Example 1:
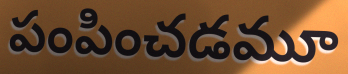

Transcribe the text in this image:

పంపించడమూ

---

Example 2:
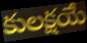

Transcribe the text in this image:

కులక్షయే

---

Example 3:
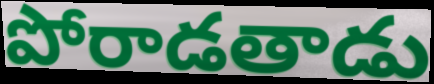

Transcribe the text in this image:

పోరాడతాడు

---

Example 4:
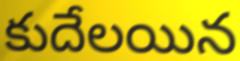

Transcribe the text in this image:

కుదేలయిన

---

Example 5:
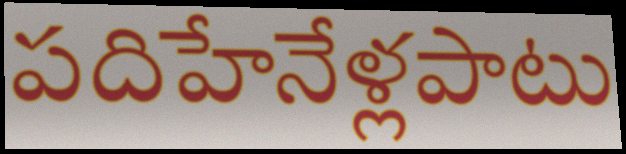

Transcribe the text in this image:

పదిహేనేళ్లపాటు